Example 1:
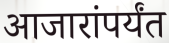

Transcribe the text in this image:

आजारांपर्यंत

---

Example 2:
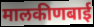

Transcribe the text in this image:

मालकीणबाई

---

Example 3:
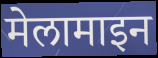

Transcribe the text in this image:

मेलामाइन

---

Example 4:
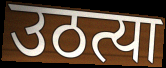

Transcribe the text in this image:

उठत्या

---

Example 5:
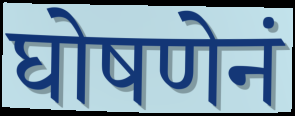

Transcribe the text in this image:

घोषणेनं